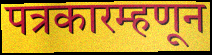
पत्रकारम्हणून